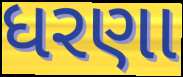
ધરણા